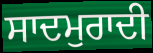
ਸਾਦਮੁਰਾਦੀ